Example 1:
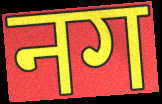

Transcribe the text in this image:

नग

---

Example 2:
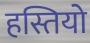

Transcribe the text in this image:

हस्तियो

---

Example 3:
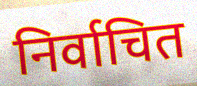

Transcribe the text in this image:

निर्वाचित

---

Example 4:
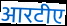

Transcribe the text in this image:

आरटीए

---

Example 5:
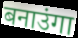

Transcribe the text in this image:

बनाउंगा